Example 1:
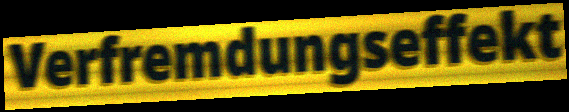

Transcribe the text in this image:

Verfremdungseffekt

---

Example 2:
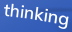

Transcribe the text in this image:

thinking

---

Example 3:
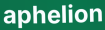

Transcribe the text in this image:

aphelion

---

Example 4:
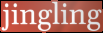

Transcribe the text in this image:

jingling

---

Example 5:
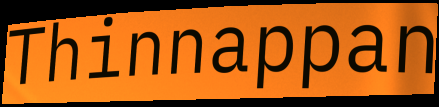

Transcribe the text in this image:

Thinnappan